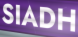
SIADH